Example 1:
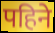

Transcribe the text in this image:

पहिने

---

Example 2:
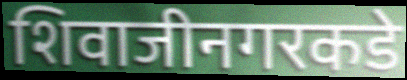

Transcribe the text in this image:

शिवाजीनगरकडे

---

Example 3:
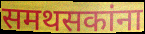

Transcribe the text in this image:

समथसकांना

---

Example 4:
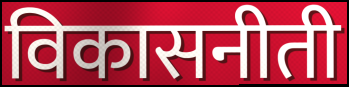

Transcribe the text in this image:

विकासनीती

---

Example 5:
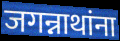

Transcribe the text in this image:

जगन्नाथांना